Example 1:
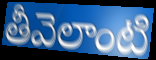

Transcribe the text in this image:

తీవెలాంటి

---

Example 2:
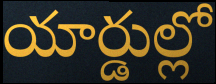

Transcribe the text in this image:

యార్డుల్లో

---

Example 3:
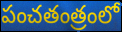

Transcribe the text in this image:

పంచతంత్రంలో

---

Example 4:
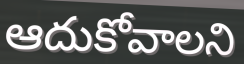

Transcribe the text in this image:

ఆదుకోవాలని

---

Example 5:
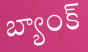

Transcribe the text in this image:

బ్యాంక్